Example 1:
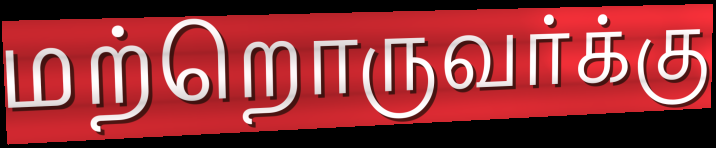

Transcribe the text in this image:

மற்றொருவர்க்கு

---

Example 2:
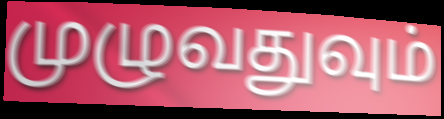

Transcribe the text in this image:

முழுவதுவும்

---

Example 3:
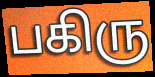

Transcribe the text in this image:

பகிரு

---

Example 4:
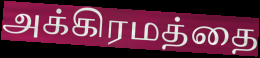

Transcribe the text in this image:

அக்கிரமத்தை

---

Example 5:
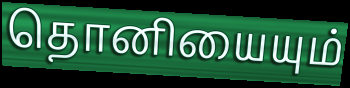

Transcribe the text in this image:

தொனியையும்